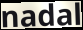
nadal